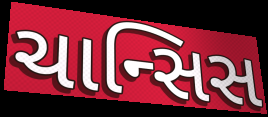
ચાન્સિસ